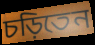
চড়িতেন